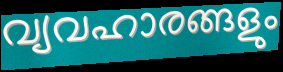
വ്യവഹാരങ്ങളും